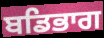
ਬਡਿਭਾਗ